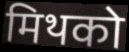
मिथको